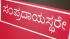
ಸಂಪ್ರದಾಯಸ್ಥರೇ